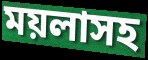
ময়লাসহ